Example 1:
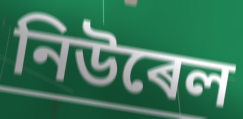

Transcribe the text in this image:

নিউৰেল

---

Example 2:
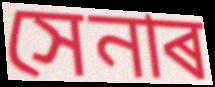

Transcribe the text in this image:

সেনাৰ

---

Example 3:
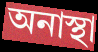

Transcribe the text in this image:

অনাস্থা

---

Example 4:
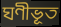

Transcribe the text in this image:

ঘণীভূত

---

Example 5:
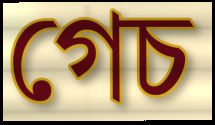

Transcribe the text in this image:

গেচ